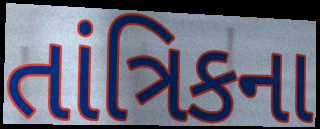
તાંત્રિકના